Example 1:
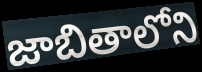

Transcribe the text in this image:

జాబితాలోని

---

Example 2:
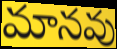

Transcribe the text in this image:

మానవు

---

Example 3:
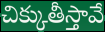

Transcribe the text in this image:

చిక్కుతీస్తావే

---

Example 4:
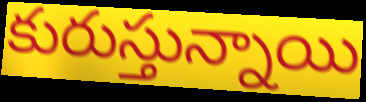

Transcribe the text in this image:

కురుస్తున్నాయి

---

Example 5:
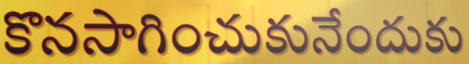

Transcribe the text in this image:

కొనసాగించుకునేందుకు